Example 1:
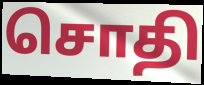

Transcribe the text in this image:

சொதி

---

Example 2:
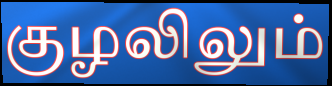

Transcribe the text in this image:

குழலிலும்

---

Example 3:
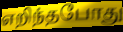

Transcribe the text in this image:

எறிந்தபோது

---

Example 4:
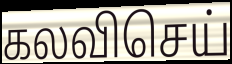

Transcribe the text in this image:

கலவிசெய்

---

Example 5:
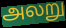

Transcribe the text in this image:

அலறு